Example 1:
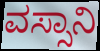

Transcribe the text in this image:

ವಸ್ಸಾನಿ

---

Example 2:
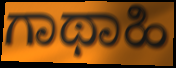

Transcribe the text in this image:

ಗಾಥಾಹಿ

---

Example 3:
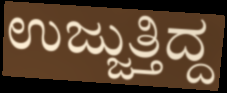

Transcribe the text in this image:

ಉಜ್ಜುತ್ತಿದ್ದ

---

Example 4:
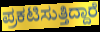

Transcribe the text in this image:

ಪ್ರಕಟಿಸುತ್ತಿದ್ದಾರೆ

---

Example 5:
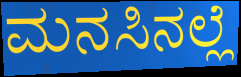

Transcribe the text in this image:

ಮನಸಿನಲ್ಲೆ